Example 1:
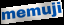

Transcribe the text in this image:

memuji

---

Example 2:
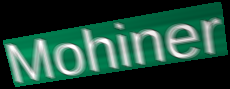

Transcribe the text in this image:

Mohiner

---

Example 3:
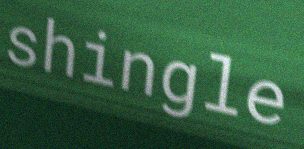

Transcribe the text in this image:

shingle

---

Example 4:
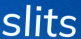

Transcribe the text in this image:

slits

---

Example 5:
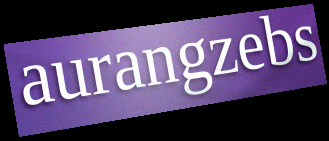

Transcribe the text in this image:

aurangzebs